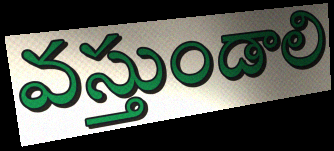
వస్తుండాలి